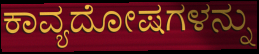
ಕಾವ್ಯದೋಷಗಳನ್ನು